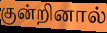
குன்றினால்